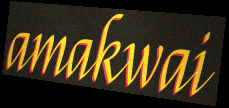
amakwai